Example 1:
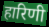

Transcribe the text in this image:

हारिणी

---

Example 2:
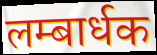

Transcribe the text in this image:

लम्बार्धक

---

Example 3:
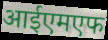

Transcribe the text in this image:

आईएमएफ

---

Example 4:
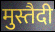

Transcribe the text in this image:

मुस्तैदी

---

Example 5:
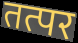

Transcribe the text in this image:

तत्पर